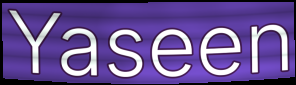
Yaseen